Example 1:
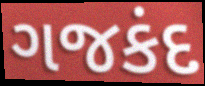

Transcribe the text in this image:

ગજકંદ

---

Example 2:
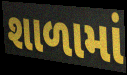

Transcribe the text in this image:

શાળામાં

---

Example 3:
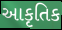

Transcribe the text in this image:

આકૃતિક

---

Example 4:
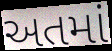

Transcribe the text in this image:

અતમાં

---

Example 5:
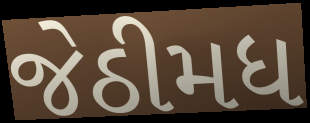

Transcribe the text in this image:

જેઠીમધ